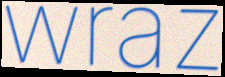
wraz